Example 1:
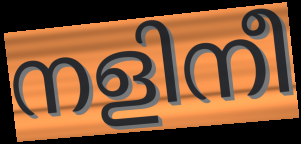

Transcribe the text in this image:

നളിനീ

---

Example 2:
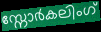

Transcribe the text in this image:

സ്നോർകലിംഗ്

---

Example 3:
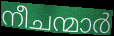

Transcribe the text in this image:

നീചന്മാർ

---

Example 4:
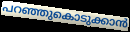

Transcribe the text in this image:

പറഞ്ഞുകൊടുക്കാൻ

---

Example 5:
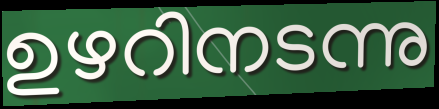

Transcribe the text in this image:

ഉഴറിനടന്നു